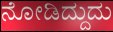
ನೋಡಿದ್ದುದು